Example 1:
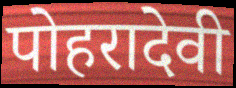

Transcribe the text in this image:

पोहरादेवी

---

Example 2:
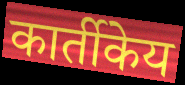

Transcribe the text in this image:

कार्तीकेय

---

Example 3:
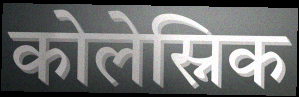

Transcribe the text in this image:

कोलेस्निक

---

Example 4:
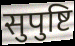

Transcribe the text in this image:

सुपुष्टि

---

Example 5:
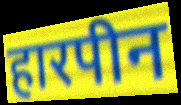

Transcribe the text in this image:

हारपीन